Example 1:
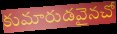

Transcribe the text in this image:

కుమారుడవైనచో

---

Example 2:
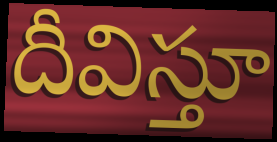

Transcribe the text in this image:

దీవిస్తూ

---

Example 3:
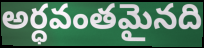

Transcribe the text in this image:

అర్ధవంతమైనది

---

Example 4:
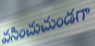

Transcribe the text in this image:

వసించుచుండగా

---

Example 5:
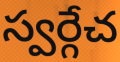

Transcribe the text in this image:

స్వర్గేచ